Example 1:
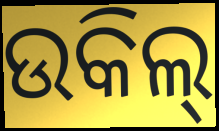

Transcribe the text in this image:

ଉକିଲ୍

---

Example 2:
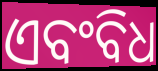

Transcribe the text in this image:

ଏବଂବିଧ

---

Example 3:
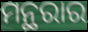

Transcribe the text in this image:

ମନ୍ଥରାର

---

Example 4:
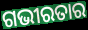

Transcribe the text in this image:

ଗଭୀରତାର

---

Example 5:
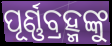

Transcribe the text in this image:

ପୂର୍ଣ୍ଣବ୍ରହ୍ମଙ୍କୁ